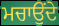
ਮਚਾਉਂਦੇ